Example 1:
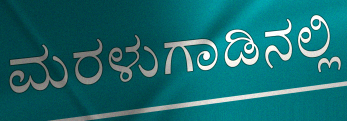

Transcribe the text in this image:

ಮರಳುಗಾಡಿನಲ್ಲಿ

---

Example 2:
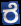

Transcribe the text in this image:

ರೆ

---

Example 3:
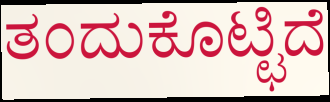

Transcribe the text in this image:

ತಂದುಕೊಟ್ಟಿದೆ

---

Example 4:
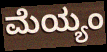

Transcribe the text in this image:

ಮೆಯ್ಯಂ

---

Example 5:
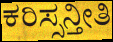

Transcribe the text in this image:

ಕರಿಸ್ಸನ್ತೀತಿ